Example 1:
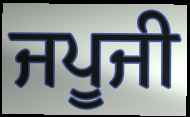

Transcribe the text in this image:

ਜਪੂਜੀ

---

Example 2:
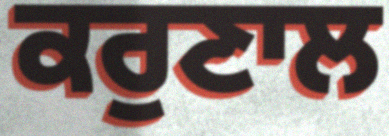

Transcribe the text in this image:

ਕਰੁਣਾਲ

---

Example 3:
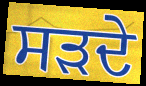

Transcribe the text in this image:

ਸੜਦੇ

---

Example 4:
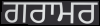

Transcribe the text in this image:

ਗਰਾਮਰ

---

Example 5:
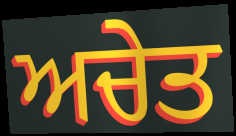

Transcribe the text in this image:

ਅਚੇਤ